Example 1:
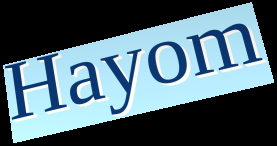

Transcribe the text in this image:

Hayom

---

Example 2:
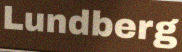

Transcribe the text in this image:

Lundberg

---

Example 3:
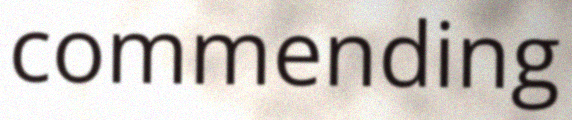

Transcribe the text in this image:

commending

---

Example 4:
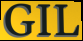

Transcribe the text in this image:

GIL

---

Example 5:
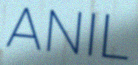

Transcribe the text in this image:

ANIL